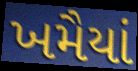
ખમૈયાં